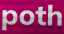
poth